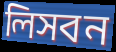
লিসবন